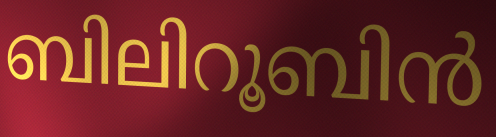
ബിലിറൂബിൻ